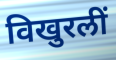
विखुरलीं